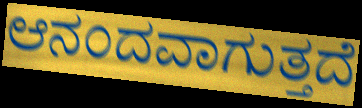
ಆನಂದವಾಗುತ್ತದೆ